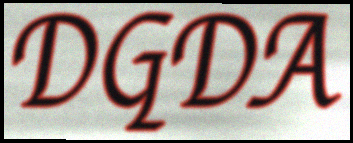
DGDA